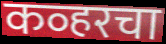
कव्हरचा